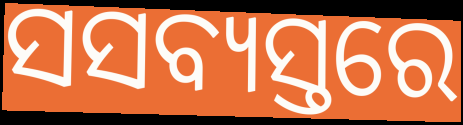
ସସବ୍ୟସ୍ତରେ